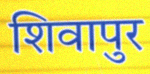
शिवापुर